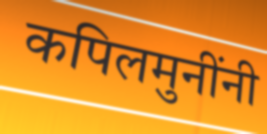
कपिलमुनींनी